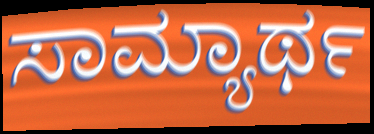
ಸಾಮ್ಯಾರ್ಥ